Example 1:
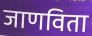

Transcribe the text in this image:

जाणविता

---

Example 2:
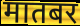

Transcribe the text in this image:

मातबर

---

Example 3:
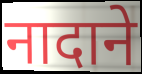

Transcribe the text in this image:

नादाने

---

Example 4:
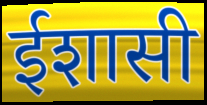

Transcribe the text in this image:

ईशासी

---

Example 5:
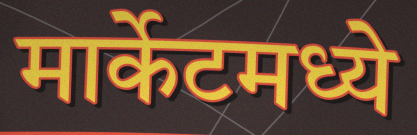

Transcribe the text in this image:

मार्केटमध्ये